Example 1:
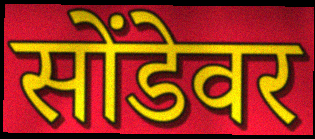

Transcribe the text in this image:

सोंडेवर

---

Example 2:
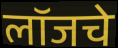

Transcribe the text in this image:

लॉजचे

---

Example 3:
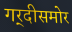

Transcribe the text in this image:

गर्दीसमोर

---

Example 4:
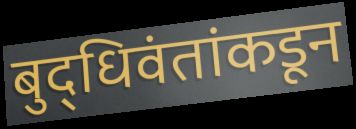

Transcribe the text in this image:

बुद्धिवंतांकडून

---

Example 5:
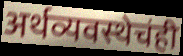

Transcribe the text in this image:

अर्थव्यवस्थेचंही